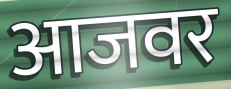
आजवर